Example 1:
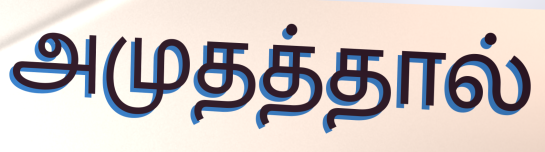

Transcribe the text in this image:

அமுதத்தால்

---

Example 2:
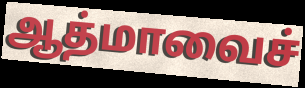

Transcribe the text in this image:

ஆத்மாவைச்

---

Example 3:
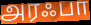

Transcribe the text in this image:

அரஃபா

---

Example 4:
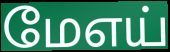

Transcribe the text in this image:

மேஎய்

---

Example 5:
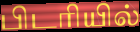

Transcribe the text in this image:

பிடரியில்